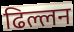
ढिल्लन